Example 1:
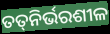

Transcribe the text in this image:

ତତ୍‍ନିର୍ଭରଶୀଳ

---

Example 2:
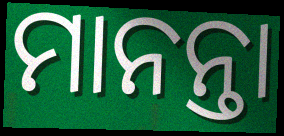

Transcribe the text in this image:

ମାନନ୍ତା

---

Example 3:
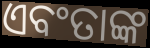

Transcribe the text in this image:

ଏବଂତାଙ୍କ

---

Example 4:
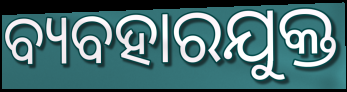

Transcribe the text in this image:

ବ୍ୟବହାରଯୁକ୍ତ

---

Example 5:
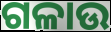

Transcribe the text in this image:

ଗଳାଉ